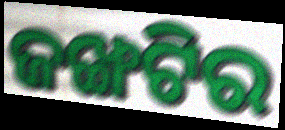
ଜଙ୍ଖଟିର